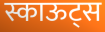
स्काऊट्स